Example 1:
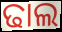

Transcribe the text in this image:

ଢାଲ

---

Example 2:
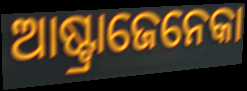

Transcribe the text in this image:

ଆଷ୍ଟ୍ରାଜେନେକା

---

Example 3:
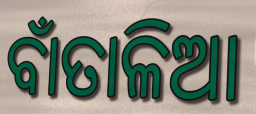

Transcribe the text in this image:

ବାଁତାଳିଆ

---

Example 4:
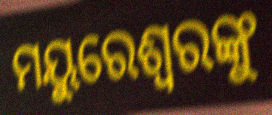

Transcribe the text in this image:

ମୟୁରେଶ୍ବରଙ୍କୁ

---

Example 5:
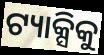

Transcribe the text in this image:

ଟ୍ୟାକ୍ସିକୁ